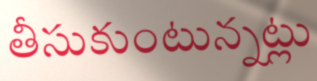
తీసుకుంటున్నట్లు